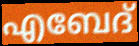
എബേദ്